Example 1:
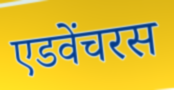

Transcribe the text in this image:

एडवेंचरस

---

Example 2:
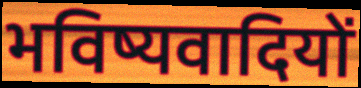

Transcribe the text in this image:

भविष्यवादियों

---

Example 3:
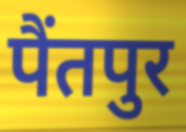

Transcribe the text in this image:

पैंतपुर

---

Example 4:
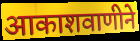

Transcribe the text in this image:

आकाशवाणीने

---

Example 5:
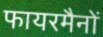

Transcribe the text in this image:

फायरमैनों